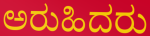
ಅರುಹಿದರು